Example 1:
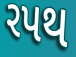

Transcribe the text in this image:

રપથ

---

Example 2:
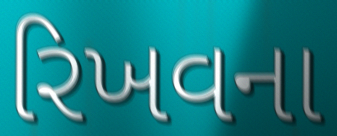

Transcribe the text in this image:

રિખવના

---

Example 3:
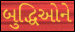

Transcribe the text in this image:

બુદ્ધિઓને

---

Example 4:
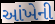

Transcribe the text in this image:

આંખેની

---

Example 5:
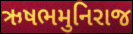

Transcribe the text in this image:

ઋષભમુનિરાજ